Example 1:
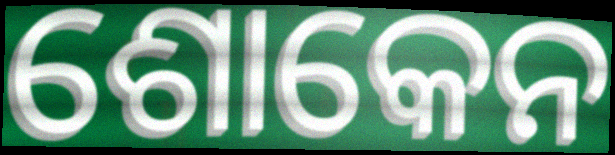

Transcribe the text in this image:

ଶୋକେନ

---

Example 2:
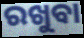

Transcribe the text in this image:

ରଖୁବା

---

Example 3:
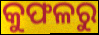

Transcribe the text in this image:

କୁଫଳରୁ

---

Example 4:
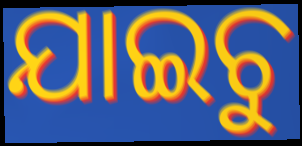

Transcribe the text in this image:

ଯାଇଚୁ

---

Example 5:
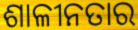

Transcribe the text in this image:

ଶାଳୀନତାର